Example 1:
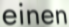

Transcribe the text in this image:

einen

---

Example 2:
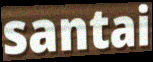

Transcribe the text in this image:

santai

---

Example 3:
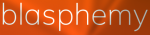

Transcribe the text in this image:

blasphemy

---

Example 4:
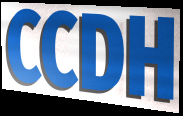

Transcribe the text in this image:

CCDH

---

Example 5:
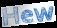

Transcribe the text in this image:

Hew